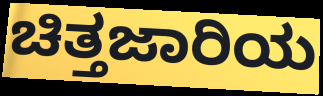
ಚಿತ್ತಜಾರಿಯ